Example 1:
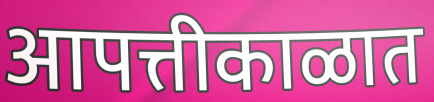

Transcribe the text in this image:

आपत्तीकाळात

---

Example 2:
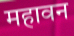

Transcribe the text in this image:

महावन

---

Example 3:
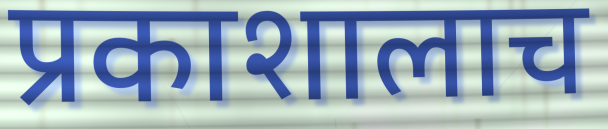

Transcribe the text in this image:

प्रकाशालाच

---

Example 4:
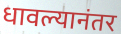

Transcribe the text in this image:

धावल्यानंतर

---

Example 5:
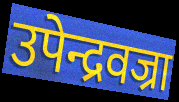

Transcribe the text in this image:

उपेन्द्रवज्रा